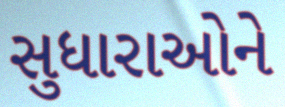
સુધારાઓને